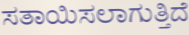
ಸತಾಯಿಸಲಾಗುತ್ತಿದೆ